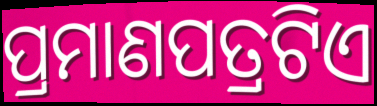
ପ୍ରମାଣପତ୍ରଟିଏ